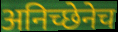
अनिच्छेनेच